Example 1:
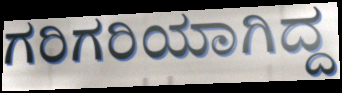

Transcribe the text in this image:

ಗರಿಗರಿಯಾಗಿದ್ದ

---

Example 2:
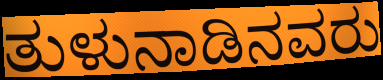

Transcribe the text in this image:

ತುಳುನಾಡಿನವರು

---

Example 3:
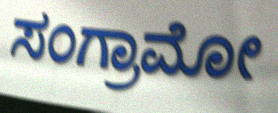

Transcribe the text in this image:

ಸಂಗ್ರಾಮೋ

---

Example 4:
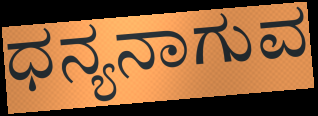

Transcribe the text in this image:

ಧನ್ಯನಾಗುವ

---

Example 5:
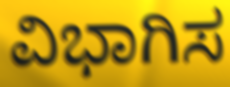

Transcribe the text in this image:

ವಿಭಾಗಿಸ